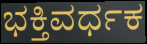
ಭಕ್ತಿವರ್ಧಕ